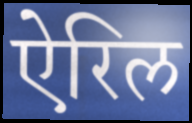
ऐरिल